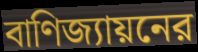
বাণিজ্যায়নের